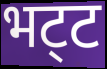
भट्‌ट